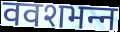
ववशभन्न